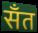
सँत